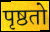
पृष्ठतो